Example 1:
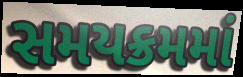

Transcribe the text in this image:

સમયક્રમમાં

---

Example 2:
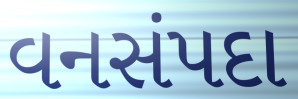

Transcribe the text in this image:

વનસંપદા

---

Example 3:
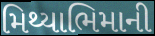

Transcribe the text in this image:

મિથ્યાભિમાની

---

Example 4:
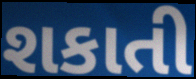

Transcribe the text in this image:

શકાતી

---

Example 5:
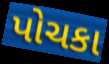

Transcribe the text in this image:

પોચકા